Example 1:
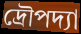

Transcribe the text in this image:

দ্রৌপদ্যা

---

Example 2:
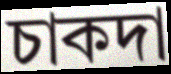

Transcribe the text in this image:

চাকদা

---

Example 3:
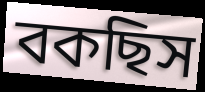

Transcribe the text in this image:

বকছিস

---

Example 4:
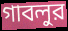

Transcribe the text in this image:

গাবলুর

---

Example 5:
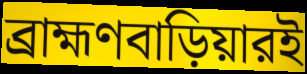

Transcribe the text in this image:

ব্রাহ্মণবাড়িয়ারই